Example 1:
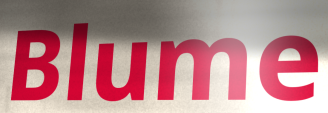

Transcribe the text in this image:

Blume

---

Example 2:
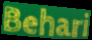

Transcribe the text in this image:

Behari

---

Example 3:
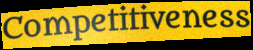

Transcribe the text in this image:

Competitiveness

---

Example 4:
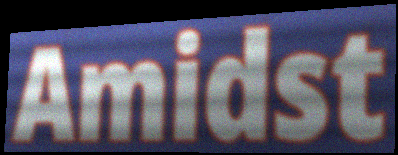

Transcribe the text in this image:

Amidst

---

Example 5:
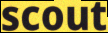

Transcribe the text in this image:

scout